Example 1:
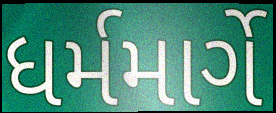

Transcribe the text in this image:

ધર્મમાર્ગે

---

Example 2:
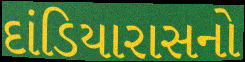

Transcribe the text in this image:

દાંડિયારાસનો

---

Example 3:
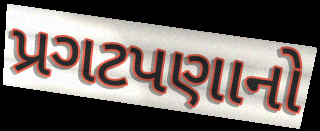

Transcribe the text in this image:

પ્રગટપણાનો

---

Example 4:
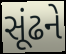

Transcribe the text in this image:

સૂંઢને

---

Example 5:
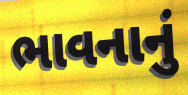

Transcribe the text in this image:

ભાવનાનું